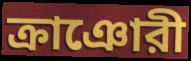
ক্রাঞোরী